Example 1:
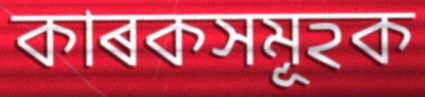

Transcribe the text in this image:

কাৰকসমূহক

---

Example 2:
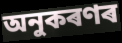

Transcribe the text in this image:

অনুকৰণৰ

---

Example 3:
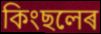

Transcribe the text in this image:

কিংছলেৰ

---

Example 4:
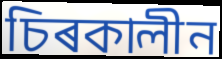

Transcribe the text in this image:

চিৰকালীন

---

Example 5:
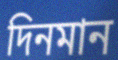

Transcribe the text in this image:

দিনমান